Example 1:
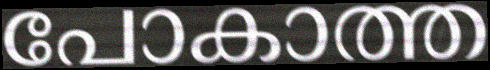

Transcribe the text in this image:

പോകാത്ത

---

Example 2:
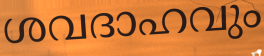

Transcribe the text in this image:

ശവദാഹവും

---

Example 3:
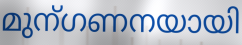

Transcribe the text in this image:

മുന്ഗണനയായി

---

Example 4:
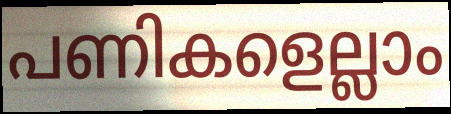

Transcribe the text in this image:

പണികളെല്ലാം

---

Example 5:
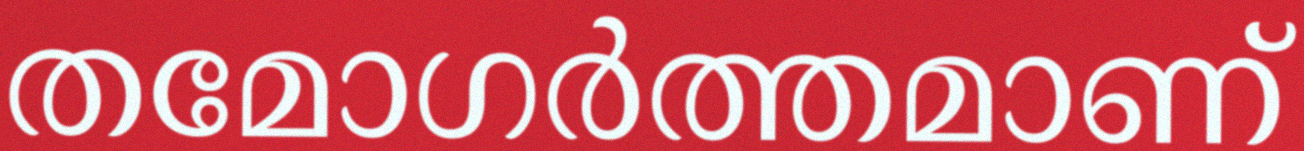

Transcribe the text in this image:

തമോഗർത്തമാണ്